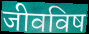
जीवविष